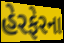
હેરફેરના